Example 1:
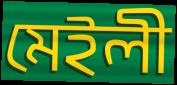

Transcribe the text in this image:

মেইলী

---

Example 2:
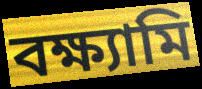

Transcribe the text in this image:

বক্ষ্যামি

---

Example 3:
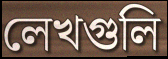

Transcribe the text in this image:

লেখগুলি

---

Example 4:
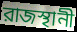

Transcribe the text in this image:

রাজস্থানী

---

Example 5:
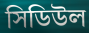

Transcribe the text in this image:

সিডিউল